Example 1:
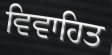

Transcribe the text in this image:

ਵਿਵਾਹਿਤ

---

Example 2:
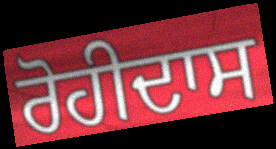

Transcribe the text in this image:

ਰੋਹੀਦਾਸ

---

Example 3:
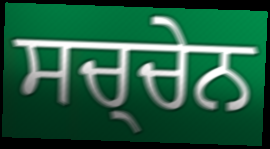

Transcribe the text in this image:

ਸਚ੍ਚੇਨ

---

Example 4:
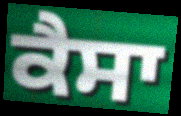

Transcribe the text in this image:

ਕੈਸਾ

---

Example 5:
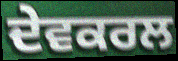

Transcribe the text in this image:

ਦੇਵਕਰਲ